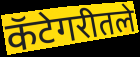
कॅटेगरीतले